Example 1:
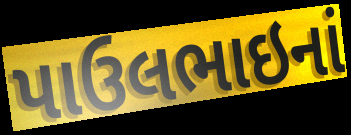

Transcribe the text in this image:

પાઉલભાઇનાં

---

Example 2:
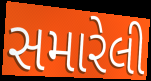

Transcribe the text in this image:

સમારેલી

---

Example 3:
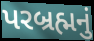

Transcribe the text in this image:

પરબ્રહ્મનું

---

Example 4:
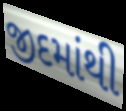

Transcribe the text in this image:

જીદમાંથી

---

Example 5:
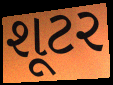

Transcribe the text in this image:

શૂટર